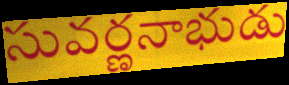
సువర్ణనాభుడు